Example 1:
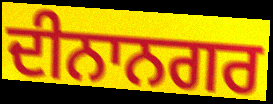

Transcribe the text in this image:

ਦੀਨਾਨਗਰ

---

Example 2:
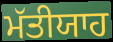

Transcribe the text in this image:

ਮੱਤੀਯਾਹ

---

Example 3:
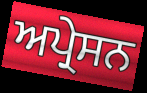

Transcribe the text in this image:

ਅਪ੍ਰੇਸਨ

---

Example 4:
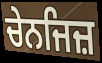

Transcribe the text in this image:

ਚੇਨਜਿਜ਼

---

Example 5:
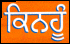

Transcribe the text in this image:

ਕਿਨਹੂੰ